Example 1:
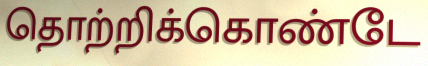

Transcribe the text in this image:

தொற்றிக்கொண்டே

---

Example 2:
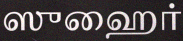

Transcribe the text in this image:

ஸுஹைர்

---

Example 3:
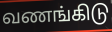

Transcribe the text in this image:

வணங்கிடு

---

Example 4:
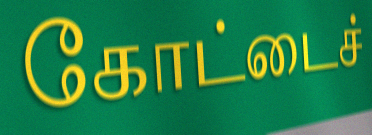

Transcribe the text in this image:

கோட்டைச்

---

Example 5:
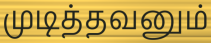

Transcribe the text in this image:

முடித்தவனும்